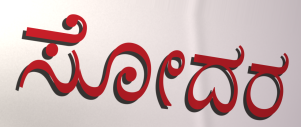
ಸೋದರ